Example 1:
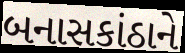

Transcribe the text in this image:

બનાસકાંઠાને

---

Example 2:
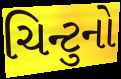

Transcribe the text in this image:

ચિન્ટુનો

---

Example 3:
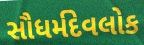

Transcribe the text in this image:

સૌધર્મદેવલોક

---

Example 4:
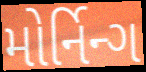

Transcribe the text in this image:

મોર્નિન્ગ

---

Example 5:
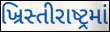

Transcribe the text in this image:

ખ્રિસ્તીરાષ્ટ્રમાં